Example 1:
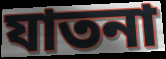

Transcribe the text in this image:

যাতনা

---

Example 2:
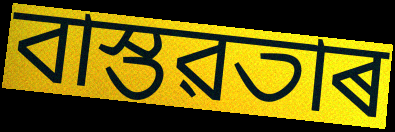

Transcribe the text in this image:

বাস্তৱতাৰ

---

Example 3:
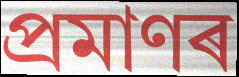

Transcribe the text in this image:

প্ৰমাণৰ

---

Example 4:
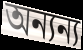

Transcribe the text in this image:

অন্যন্য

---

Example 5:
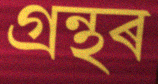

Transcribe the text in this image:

গ্ৰন্থৰ